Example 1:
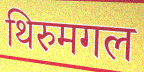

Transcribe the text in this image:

थिरुमगल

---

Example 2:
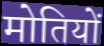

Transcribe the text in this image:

मोतियों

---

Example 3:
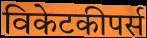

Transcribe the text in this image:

विकेटकीपर्स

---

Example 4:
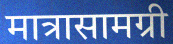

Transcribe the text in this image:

मात्रासामग्री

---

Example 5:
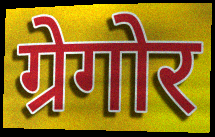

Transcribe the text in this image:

ग्रेगोर